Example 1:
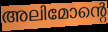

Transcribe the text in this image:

അലിമോന്റെ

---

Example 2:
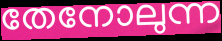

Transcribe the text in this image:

തേനോലുന്ന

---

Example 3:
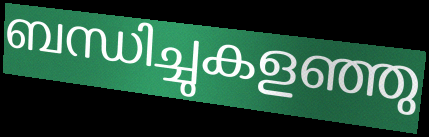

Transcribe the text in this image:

ബന്ധിച്ചുകളഞ്ഞു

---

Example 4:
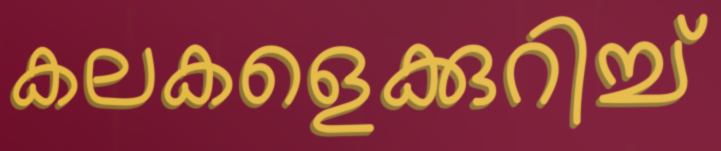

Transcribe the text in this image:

കലകളെക്കുറിച്ച്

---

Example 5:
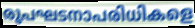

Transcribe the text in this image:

രൂപഘടനാപരിധികളെ